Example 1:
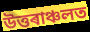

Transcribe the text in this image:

উত্তৰাঞ্চলত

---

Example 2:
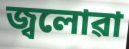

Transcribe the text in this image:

জ্বলোৱা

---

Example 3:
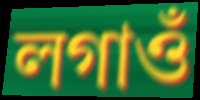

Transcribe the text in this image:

লগাওঁ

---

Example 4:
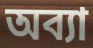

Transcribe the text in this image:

অব্যা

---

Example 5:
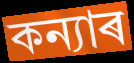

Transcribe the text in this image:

কন্যাৰ